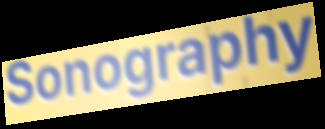
Sonography